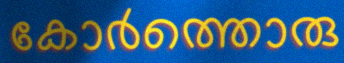
കോർത്തൊരു